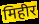
मिहीर